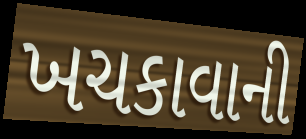
ખચકાવાની